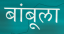
बांबूला